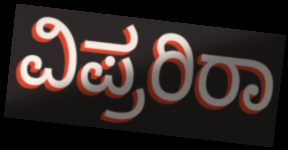
ವಿಪ್ರರಿರಾ